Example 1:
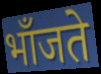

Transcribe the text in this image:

भाँजते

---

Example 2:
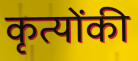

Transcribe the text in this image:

कृत्योंकी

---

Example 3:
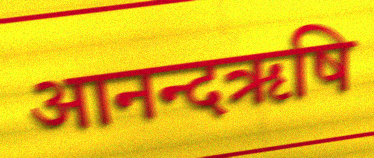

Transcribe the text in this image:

आनन्दऋषि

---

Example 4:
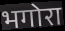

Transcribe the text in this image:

भगोरा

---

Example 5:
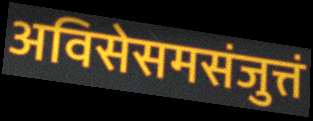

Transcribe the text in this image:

अविसेसमसंजुत्तं